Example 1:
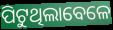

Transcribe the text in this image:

ପିଟୁଥିଲାବେଳେ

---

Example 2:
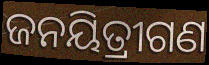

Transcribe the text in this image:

ଜନୟିତ୍ରୀଗଣ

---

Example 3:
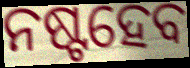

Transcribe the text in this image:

ନଷ୍ଟହେବ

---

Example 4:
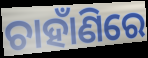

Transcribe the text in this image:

ଚାହାଁଣିରେ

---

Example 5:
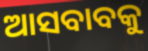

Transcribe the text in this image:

ଆସବାବକୁ